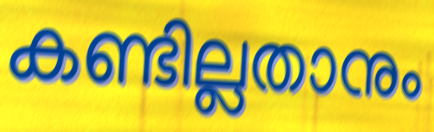
കണ്ടില്ലതാനും